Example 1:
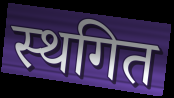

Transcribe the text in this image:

स्थगित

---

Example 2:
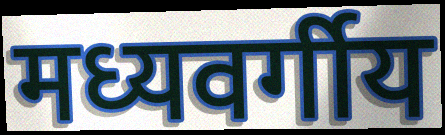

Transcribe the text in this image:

मध्यवर्गीय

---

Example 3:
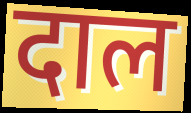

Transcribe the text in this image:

दाल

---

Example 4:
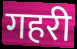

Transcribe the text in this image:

गहरी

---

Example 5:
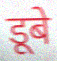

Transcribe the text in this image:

डूबे